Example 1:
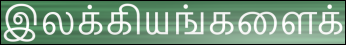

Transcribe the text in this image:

இலக்கியங்களைக்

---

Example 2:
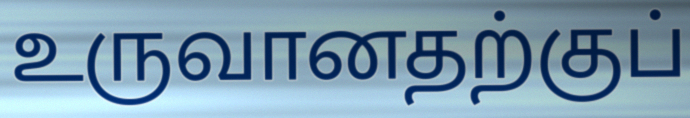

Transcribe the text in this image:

உருவானதற்குப்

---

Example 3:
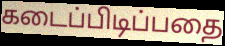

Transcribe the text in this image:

கடைப்பிடிப்பதை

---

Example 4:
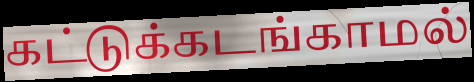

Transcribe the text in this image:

கட்டுக்கடங்காமல்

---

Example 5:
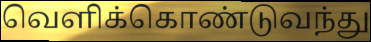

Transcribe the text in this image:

வெளிக்கொண்டுவந்து